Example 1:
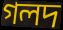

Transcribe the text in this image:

গলদ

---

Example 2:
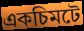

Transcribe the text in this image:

একচিমটে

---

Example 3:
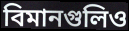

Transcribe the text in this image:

বিমানগুলিও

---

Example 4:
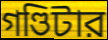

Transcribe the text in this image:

গণ্ডিটার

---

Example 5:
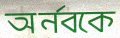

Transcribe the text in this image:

অর্নবকে